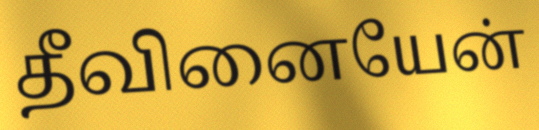
தீவினையேன்